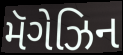
મૅગેઝિન